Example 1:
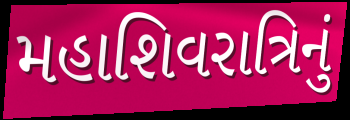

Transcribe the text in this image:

મહાશિવરાત્રિનું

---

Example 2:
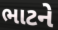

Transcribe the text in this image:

ભાટને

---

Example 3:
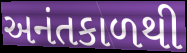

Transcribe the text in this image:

અનંતકાળથી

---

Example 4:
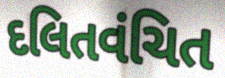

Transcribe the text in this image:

દલિતવંચિત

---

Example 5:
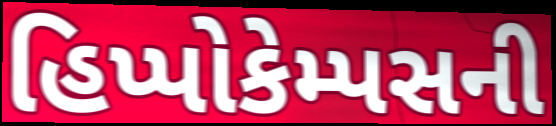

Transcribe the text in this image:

હિપ્પોકેમ્પસની